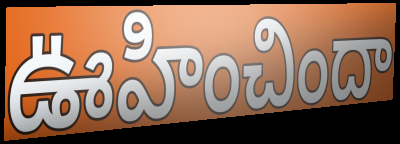
ఊహించిందా